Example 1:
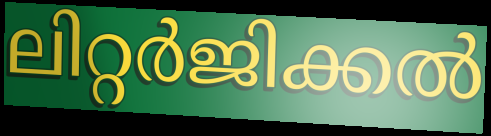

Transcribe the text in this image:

ലിറ്റർജിക്കൽ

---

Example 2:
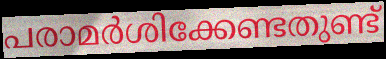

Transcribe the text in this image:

പരാമർശിക്കേണ്ടതുണ്ട്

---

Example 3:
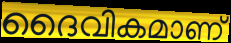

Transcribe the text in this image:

ദൈവികമാണ്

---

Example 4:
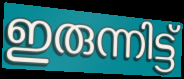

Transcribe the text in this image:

ഇരുന്നിട്ട്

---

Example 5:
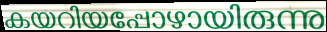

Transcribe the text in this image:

കയറിയപ്പോഴായിരുന്നു